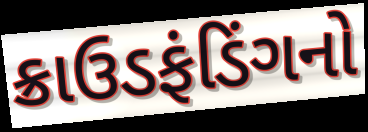
ક્રાઉડફંડિંગનો